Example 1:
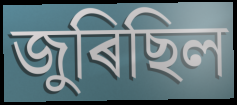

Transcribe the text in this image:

জুৰিছিল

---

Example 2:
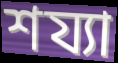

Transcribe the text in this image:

শয্যা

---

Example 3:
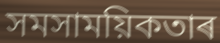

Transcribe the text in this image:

সমসাময়িকতাৰ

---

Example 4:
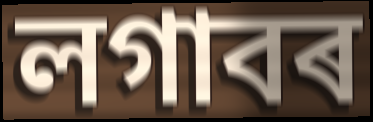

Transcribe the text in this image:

লগাবৰ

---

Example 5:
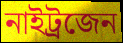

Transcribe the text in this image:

নাইট্ৰজেন